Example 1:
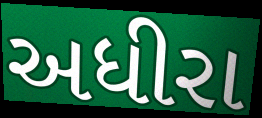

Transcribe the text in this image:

અધીરા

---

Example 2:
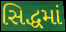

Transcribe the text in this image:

સિદ્ધમાં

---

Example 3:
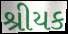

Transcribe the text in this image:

શ્રીયક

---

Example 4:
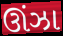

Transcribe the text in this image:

ઊંઝા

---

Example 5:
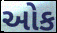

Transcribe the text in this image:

ઓક